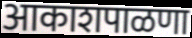
आकाशपाळणा